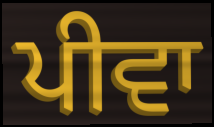
ਪੀਵਾ